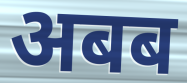
अबब